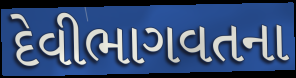
દેવીભાગવતના